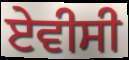
ਏਵੀਸੀ